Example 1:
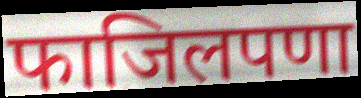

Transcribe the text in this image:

फाजिलपणा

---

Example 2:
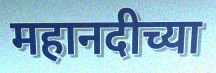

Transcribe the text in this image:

महानदीच्या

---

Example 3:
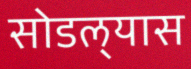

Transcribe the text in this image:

सोडल्यास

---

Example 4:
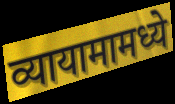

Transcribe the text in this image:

व्यायामामध्ये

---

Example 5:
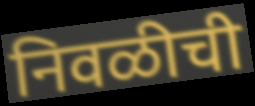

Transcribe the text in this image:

निवळीची